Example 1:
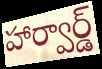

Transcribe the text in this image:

హార్వార్డ్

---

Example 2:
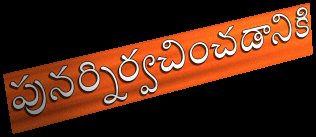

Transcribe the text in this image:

పునర్నిర్వచించడానికి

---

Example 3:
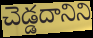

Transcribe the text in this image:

చెడ్డదానిని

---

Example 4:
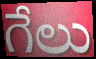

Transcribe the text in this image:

గేలు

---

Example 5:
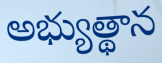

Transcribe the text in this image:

అభ్యుత్థాన